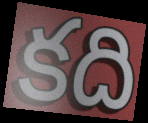
కది